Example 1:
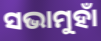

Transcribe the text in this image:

ସଭାମୁହାଁ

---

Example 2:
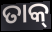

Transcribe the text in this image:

ତାକ୍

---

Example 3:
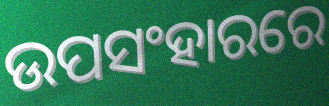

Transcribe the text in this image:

ଉପସଂହାରରେ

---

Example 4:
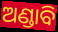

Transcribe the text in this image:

ଅଣ୍ଡାବି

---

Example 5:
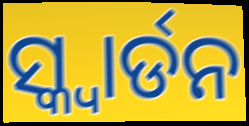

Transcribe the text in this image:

ସ୍କ୍ବାର୍ଡନ